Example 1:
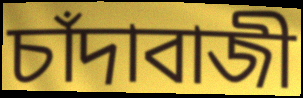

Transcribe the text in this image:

চাঁদাবাজী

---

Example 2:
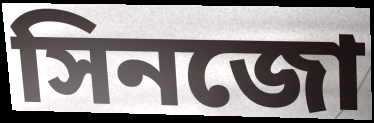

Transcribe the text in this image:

সিনজো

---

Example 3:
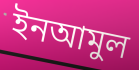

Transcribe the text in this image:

ইনআমুল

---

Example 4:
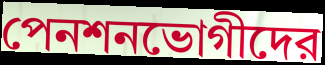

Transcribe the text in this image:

পেনশনভোগীদের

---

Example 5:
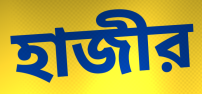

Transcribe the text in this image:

হাজীর